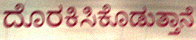
ದೊರಕಿಸಿಕೊಡುತ್ತಾನೆ